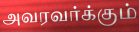
அவரவர்க்கும்